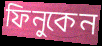
ফিনুকেন